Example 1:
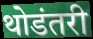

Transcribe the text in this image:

थोडंतरी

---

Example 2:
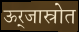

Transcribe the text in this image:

ऊर्जास्रोत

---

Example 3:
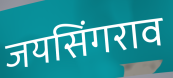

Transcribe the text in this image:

जयसिंगराव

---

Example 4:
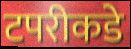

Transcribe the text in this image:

टपरीकडे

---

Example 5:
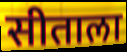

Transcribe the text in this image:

सीताला